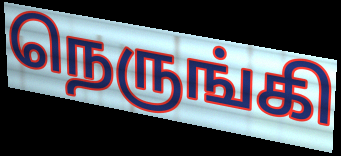
நெருங்கி